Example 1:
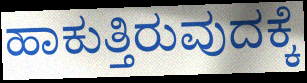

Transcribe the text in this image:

ಹಾಕುತ್ತಿರುವುದಕ್ಕೆ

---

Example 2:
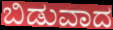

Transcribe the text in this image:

ಬಿಡುವಾದ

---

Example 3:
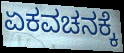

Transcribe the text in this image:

ಏಕವಚನಕ್ಕೆ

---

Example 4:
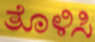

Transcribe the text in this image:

ತೊಳಿಸಿ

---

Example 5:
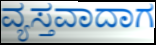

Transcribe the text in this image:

ವ್ಯಸ್ತವಾದಾಗ